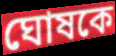
ঘোষকে